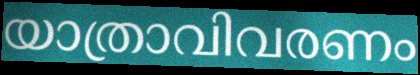
യാത്രാവിവരണം